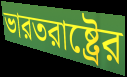
ভারতরাষ্ট্রের